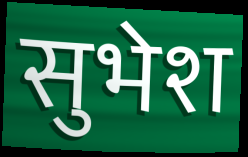
सुभेश